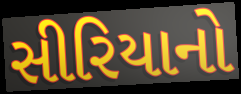
સીરિયાનો